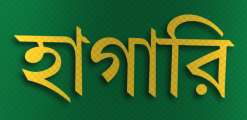
হাগারি